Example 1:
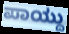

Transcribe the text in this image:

ಪಾಯ್ದು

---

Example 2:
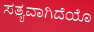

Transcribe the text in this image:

ಸತ್ಯವಾಗಿದೆಯೊ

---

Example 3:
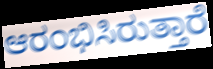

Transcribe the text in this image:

ಆರಂಭಿಸಿರುತ್ತಾರೆ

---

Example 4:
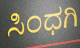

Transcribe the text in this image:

ಸಿಂಧಗಿ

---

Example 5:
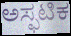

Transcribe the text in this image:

ಅಸ್ಫಟಿಕ